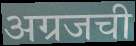
अग्रजची